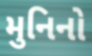
મુનિનો